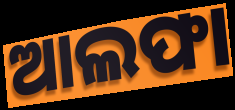
ଆଲଫା